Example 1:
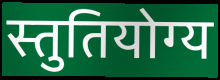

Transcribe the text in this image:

स्तुतियोग्य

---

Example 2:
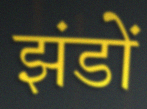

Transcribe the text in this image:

झंडों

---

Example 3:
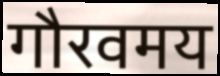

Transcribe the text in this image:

गौरवमय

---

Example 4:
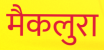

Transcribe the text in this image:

मैकलुरा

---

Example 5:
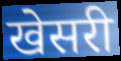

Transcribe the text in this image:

खेसरी